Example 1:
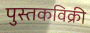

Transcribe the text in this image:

पुस्तकविक्री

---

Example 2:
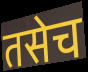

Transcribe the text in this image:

तसेच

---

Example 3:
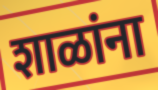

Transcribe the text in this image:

शाळांना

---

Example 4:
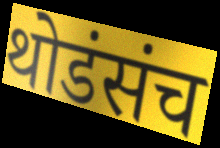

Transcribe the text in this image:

थोडंसंच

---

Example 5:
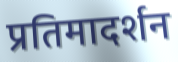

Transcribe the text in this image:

प्रतिमादर्शन